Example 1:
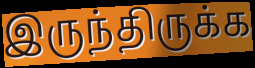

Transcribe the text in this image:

இருந்திருக்க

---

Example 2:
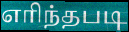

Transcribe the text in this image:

எரிந்தபடி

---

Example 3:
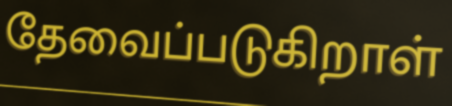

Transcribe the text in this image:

தேவைப்படுகிறாள்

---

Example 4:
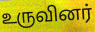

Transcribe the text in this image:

உருவினர்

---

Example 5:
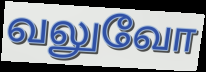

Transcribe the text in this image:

வலுவோ